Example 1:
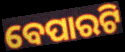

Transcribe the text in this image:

ବେପାରଟି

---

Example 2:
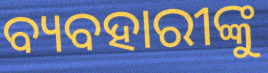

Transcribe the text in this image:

ବ୍ୟବହାରୀଙ୍କୁ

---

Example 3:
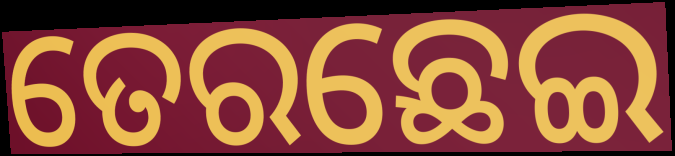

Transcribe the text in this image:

ତେରଛେଇ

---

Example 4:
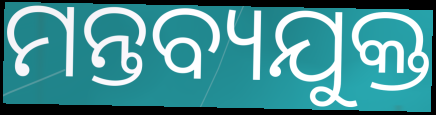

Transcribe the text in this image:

ମନ୍ତବ୍ୟଯୁକ୍ତ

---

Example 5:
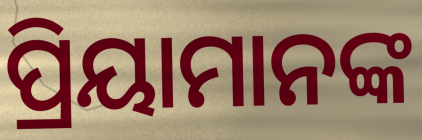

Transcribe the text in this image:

ପ୍ରିୟାମାନଙ୍କ